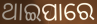
ଥାଇପାରେ